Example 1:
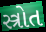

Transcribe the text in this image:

સ્ત્રોત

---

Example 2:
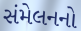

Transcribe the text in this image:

સંમેલનનો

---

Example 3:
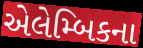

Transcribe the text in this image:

એલેમ્બિકના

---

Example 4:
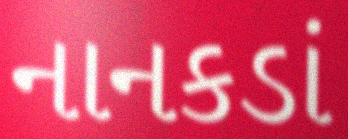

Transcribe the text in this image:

નાનકડાં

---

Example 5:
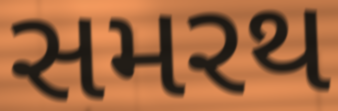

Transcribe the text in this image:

સમરથ